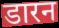
डारन